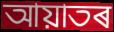
আয়াতৰ